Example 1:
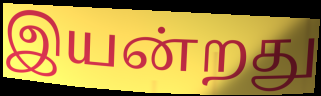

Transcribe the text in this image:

இயன்றது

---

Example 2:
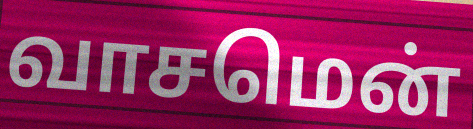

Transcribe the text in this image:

வாசமென்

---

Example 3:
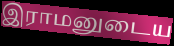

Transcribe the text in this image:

இராமனுடைய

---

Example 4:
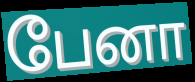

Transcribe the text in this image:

பேனா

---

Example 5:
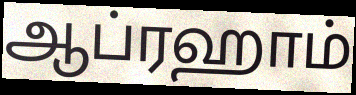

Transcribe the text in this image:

ஆப்ரஹாம்